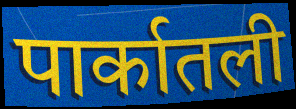
पार्कातली